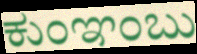
ಕುಂಞಂಬು